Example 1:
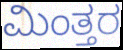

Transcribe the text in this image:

ಮಿಂತ್ತರ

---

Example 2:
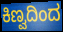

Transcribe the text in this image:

ಕಿಣ್ವದಿಂದ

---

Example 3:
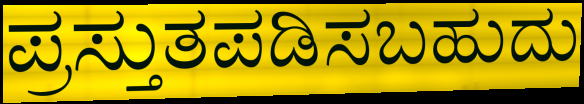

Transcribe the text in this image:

ಪ್ರಸ್ತುತಪಡಿಸಬಹುದು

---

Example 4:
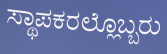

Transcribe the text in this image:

ಸ್ಥಾಪಕರಲ್ಲೊಬ್ಬರು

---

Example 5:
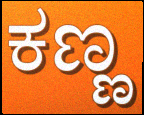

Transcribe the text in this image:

ಕಣ್ಣ